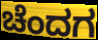
ಚೆಂದಗ